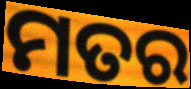
ମତର